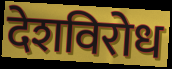
देशविरोध